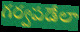
గర్వపడేలా